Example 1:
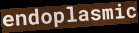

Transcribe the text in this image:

endoplasmic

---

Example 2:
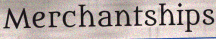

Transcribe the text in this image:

Merchantships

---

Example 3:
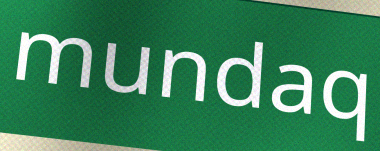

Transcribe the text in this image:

mundaq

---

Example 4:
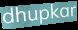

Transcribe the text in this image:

dhupkar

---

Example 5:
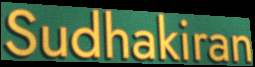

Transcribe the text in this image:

Sudhakiran